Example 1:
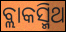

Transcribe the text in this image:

ବ୍ଲାକସ୍ମିଥ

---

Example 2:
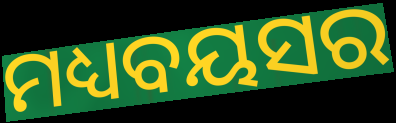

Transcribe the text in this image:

ମଧ୍ୟବୟସର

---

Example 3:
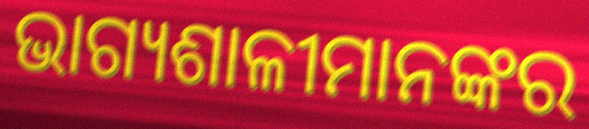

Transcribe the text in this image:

ଭାଗ୍ୟଶାଳୀମାନଙ୍କର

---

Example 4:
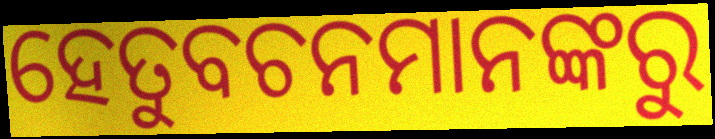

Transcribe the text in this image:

ହେତୁବଚନମାନଙ୍କରୁ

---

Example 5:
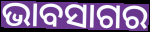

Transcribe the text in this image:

ଭାବସାଗର